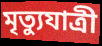
মৃত্যুযাত্রী